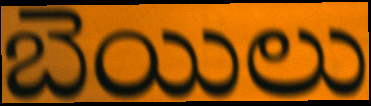
బెయిలు